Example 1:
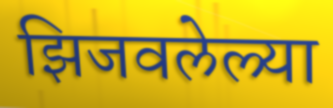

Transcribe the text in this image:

झिजवलेल्या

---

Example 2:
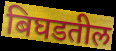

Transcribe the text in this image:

बिघडतील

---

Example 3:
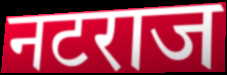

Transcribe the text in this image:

नटराज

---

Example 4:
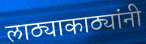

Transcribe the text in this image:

लाठ्याकाठ्यांनी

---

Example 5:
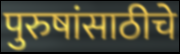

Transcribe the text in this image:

पुरुषांसाठीचे